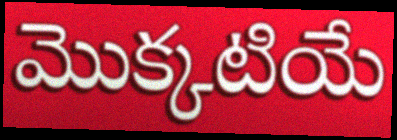
మొక్కటియే